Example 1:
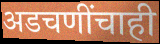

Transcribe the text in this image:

अडचणींचाही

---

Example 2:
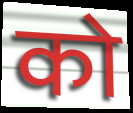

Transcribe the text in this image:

को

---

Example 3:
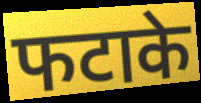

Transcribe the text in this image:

फटाके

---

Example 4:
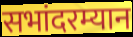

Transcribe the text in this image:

सभांदरम्यान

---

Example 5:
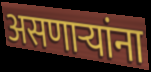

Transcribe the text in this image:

असणाऱ्यांना